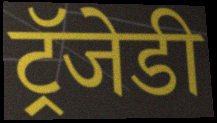
ट्रॅजेडी